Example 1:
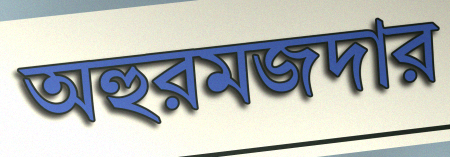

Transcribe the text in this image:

অহুরমজদার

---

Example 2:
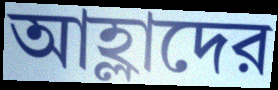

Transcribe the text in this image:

আহ্লাদের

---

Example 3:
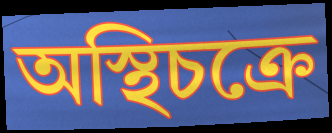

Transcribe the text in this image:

অস্থিচক্রে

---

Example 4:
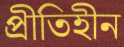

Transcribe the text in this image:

প্রীতিহীন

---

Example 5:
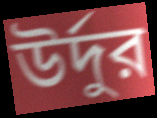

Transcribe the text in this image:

উর্দুর